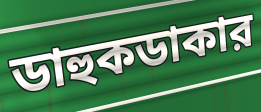
ডাহুকডাকার